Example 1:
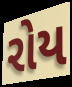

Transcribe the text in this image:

રોય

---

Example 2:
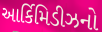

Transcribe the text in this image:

આર્કિમિડીઝનો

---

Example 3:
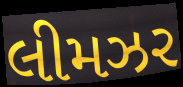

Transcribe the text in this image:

લીમઝર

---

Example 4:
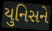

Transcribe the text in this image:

યુનિસને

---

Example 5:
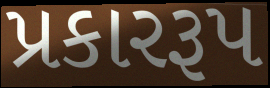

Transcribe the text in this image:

પ્રકારરૂપ